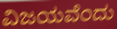
ವಿಜಯವೆಂದು